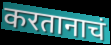
करतानाचं